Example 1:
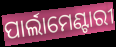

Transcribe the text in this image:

ପାର୍ଲାମେଣ୍ଟାରୀ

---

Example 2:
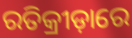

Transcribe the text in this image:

ରତିକ୍ରୀଡ଼ାରେ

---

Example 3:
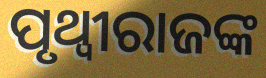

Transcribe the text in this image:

ପୃଥ୍ଵୀରାଜଙ୍କ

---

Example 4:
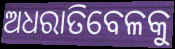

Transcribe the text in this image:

ଅଧରାତିବେଳକୁ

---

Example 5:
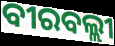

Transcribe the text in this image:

ବୀରବଲ୍ଲୀ